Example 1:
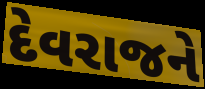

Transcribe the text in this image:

દેવરાજને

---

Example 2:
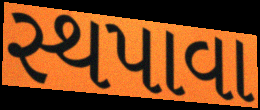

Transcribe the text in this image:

સ્થપાવા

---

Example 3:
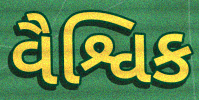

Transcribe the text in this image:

વૈશ્વિક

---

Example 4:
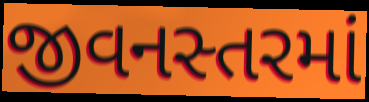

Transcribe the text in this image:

જીવનસ્તરમાં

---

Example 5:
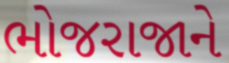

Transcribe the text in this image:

ભોજરાજાને